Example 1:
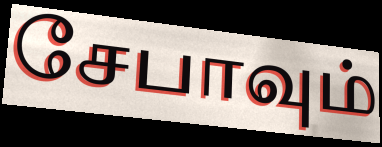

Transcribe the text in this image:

சேபாவும்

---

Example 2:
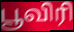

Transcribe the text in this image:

பூவிரி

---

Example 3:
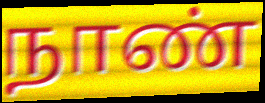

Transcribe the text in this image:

நாண்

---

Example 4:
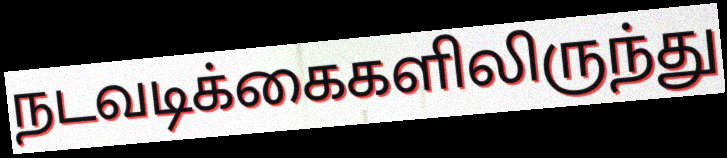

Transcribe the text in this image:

நடவடிக்கைகளிலிருந்து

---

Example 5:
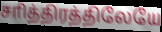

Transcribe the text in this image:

சரித்திரத்திலேயே